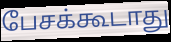
பேசக்கூடாது